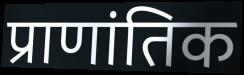
प्राणांतिक